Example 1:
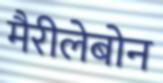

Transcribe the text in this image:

मैरीलेबोन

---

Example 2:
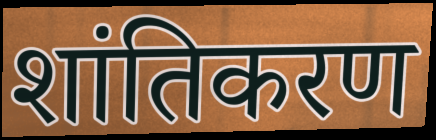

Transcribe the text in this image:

शांतिकरण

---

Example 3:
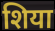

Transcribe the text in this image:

शिया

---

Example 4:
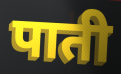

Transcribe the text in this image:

पाती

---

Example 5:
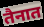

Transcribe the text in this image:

तैनात